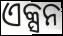
ଏକ୍ସନ